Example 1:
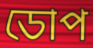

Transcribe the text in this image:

ডোপ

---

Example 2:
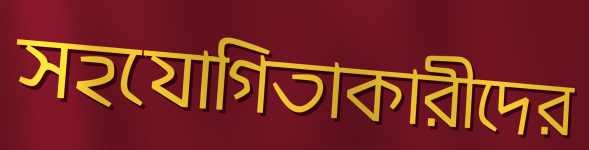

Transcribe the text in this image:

সহযোগিতাকারীদের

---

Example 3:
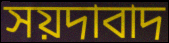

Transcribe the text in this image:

সয়দাবাদ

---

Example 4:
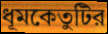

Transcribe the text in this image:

ধূমকেতুটির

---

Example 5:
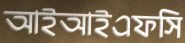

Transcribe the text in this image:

আইআইএফসি